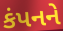
કંપનને